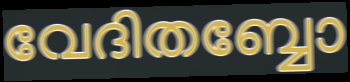
വേദിതബ്ബോ